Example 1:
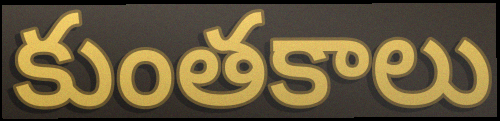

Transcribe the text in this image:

కుంతకాలు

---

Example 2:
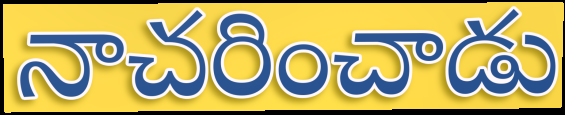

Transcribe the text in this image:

నాచరించాడు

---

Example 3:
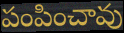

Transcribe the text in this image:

పంపించావు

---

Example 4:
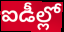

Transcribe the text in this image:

ఐడీల్లో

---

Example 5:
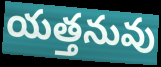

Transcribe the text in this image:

యత్తనువు